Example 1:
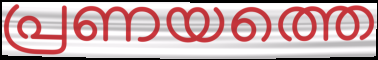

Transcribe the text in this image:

പ്രണയത്തെ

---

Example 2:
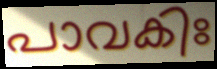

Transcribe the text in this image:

പാവകിഃ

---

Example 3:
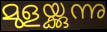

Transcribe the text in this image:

മുളയ്ക്കുന്നു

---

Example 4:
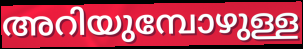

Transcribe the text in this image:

അറിയുമ്പോഴുള്ള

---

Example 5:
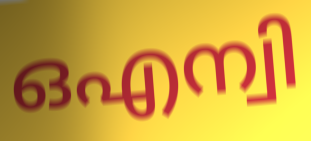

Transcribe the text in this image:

ഒഎന്വി